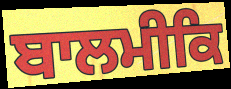
ਬਾਲਮੀਕਿ